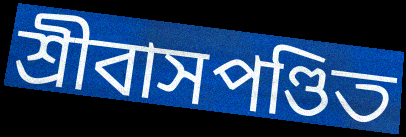
শ্রীবাসপণ্ডিত